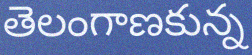
తెలంగాణకున్న